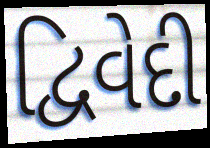
દ્વિવેદી